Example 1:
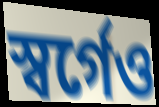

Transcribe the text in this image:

স্বর্গেও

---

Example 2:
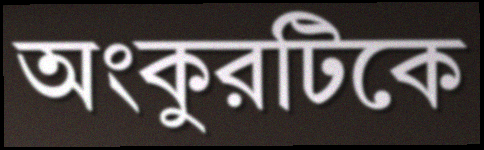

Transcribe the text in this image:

অংকুরটিকে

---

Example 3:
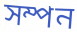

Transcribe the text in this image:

সম্পন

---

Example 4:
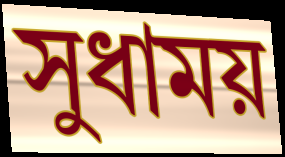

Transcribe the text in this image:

সুধাময়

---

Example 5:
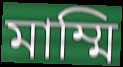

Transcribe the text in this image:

মাম্মি